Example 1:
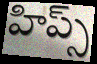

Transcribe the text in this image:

హిప్స్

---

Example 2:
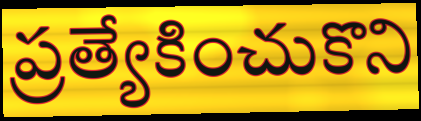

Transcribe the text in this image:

ప్రత్యేకించుకొని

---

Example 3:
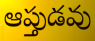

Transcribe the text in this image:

ఆప్తుడవు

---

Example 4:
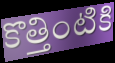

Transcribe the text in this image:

కొత్తింటికి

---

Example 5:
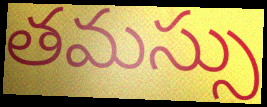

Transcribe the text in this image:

తమస్సు